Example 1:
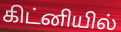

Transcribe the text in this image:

கிட்னியில்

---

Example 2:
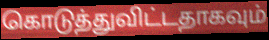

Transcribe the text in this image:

கொடுத்துவிட்டதாகவும்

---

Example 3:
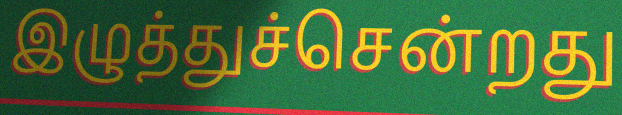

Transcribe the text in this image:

இழுத்துச்சென்றது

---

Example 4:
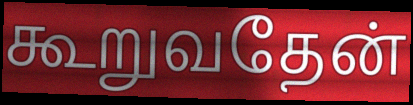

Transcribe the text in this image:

கூறுவதேன்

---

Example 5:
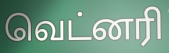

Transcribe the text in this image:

வெட்னரி